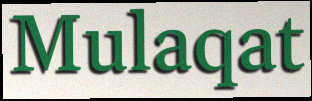
Mulaqat